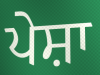
ਪੇਸ਼ਾ